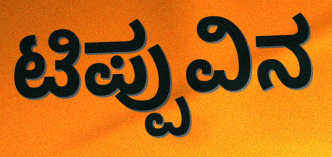
ಟಿಪ್ಪುವಿನ